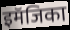
इमॅजिका